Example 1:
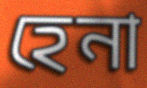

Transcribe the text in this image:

হেনা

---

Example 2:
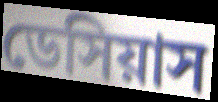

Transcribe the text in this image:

ডেসিয়াস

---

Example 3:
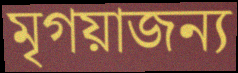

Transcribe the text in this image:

মৃগয়াজন্য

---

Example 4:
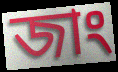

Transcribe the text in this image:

জাং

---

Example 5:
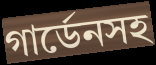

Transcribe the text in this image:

গার্ডেনসহ